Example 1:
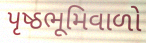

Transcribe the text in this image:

પૃષ્ઠભૂમિવાળો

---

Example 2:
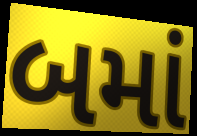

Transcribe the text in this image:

બમાં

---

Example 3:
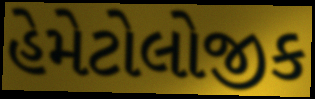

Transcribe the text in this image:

હેમેટોલોજીક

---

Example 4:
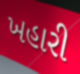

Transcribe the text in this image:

ખહારી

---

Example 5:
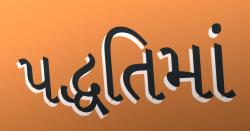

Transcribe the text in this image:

પદ્ધતિમાં